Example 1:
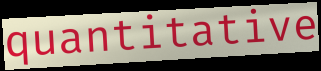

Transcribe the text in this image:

quantitative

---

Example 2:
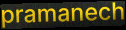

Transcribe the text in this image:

pramanech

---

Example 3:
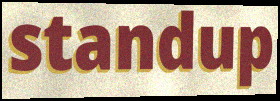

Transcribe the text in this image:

standup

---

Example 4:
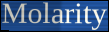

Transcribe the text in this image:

Molarity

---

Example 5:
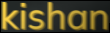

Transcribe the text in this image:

kishan